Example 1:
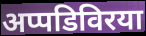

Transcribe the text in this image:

अप्पडिविरया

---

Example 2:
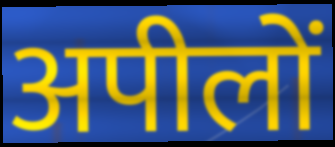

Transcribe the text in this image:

अपीलों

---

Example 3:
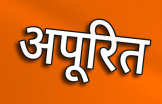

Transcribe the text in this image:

अपूरित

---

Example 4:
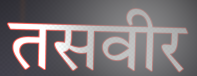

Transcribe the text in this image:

तसवीर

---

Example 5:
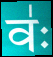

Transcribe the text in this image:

वः॑